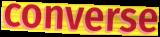
converse